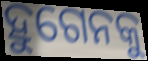
ହୁଗେନକୁ